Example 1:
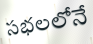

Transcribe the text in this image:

సభలలోనే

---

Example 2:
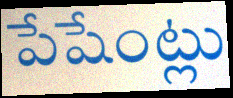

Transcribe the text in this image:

పేషేంట్లు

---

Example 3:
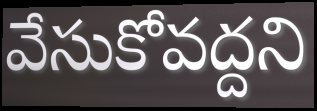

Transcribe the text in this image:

వేసుకోవద్దని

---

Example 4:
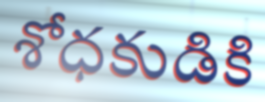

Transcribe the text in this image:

శోధకుడికి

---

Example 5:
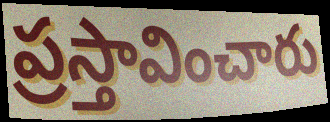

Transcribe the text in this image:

ప్రస్తావించారు